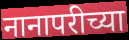
नानापरीच्या